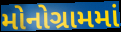
મોનોગ્રામમાં